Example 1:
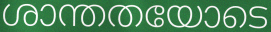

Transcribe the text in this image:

ശാന്തതയോടെ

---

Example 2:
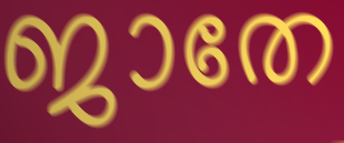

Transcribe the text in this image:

ജാതേ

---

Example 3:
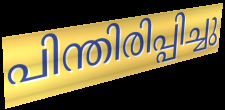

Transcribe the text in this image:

പിന്തിരിപ്പിച്ചു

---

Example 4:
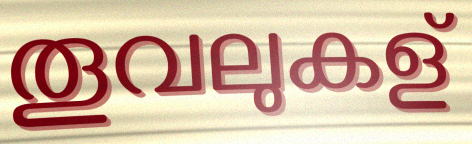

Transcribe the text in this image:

തൂവലുകള്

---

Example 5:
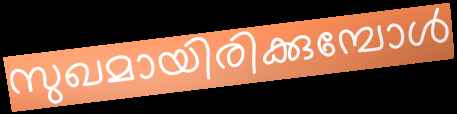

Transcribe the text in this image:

സുഖമായിരിക്കുമ്പോൾ